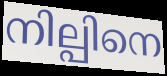
നില്പിനെ